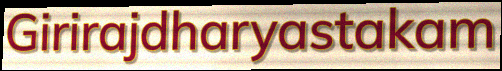
Girirajdharyastakam